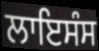
ਲਾਇਸੰਸ